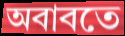
অবাবতে